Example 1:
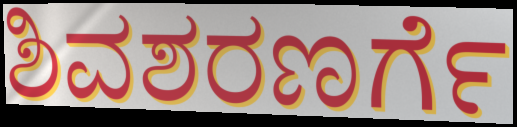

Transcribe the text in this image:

ಶಿವಶರಣರ್ಗೆ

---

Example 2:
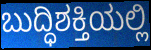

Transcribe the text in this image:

ಬುದ್ಧಿಶಕ್ತಿಯಲ್ಲಿ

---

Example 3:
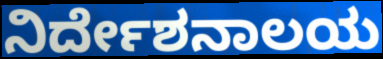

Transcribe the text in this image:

ನಿರ್ದೇಶನಾಲಯ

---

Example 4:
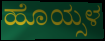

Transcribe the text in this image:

ಹೊಯ್ಸಳ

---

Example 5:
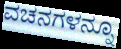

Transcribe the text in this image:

ವಚನಗಳನ್ನೂ